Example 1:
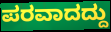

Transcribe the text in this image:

ಪರವಾದದ್ದು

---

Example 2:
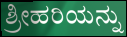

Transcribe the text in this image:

ಶ್ರೀಹರಿಯನ್ನು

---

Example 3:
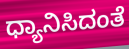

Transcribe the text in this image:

ಧ್ಯಾನಿಸಿದಂತೆ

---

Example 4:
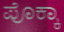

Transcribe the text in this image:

ಪೊಕ್ಕಾ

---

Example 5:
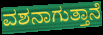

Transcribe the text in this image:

ವಶನಾಗುತ್ತಾನೆ